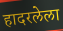
हादरलेला